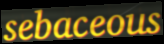
sebaceous